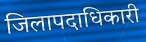
जिलापदाधिकारी